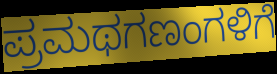
ಪ್ರಮಥಗಣಂಗಳಿಗೆ